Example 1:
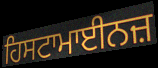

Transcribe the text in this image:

ਹਿਸਟਾਮਾਈਨਜ਼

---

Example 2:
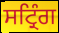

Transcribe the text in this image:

ਸਟ੍ਰਿੰਗ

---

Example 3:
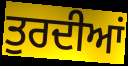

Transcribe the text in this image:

ਤੁਰਦੀਆਂ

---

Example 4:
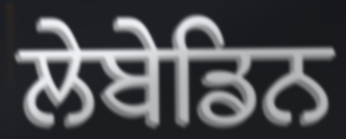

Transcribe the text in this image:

ਲੇਬੇਡਿਨ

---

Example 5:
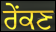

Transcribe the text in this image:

ਰੇੰਕਣ